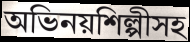
অভিনয়শিল্পীসহ